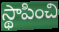
స్థాపించి